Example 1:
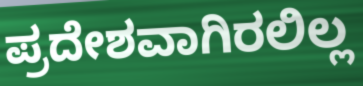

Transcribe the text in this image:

ಪ್ರದೇಶವಾಗಿರಲಿಲ್ಲ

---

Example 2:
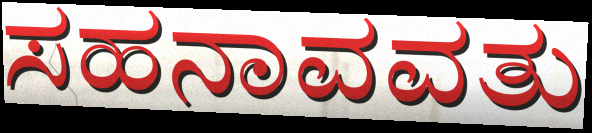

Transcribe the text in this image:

ಸಹನಾವವತು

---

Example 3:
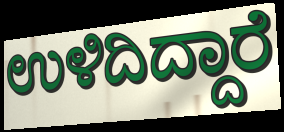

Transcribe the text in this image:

ಉಳಿದಿದ್ದಾರೆ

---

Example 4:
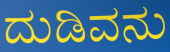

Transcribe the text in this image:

ದುಡಿವನು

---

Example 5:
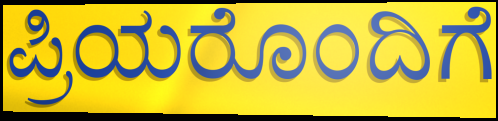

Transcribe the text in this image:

ಪ್ರಿಯರೊಂದಿಗೆ